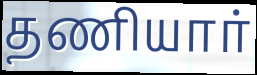
தணியார்